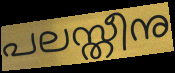
പലസ്തീനു